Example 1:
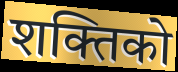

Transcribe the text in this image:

शक्तिको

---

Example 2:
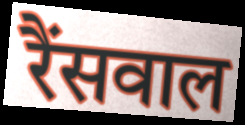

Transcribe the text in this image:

रैंसवाल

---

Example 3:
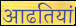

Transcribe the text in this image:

आढतियां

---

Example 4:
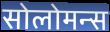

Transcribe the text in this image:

सोलोमन्स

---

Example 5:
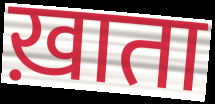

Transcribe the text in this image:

ख़ाता